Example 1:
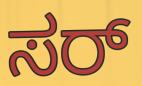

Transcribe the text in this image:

ಸರ್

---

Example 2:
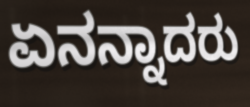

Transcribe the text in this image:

ಏನನ್ನಾದರು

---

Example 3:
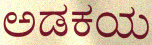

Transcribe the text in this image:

ಅಡಕಯ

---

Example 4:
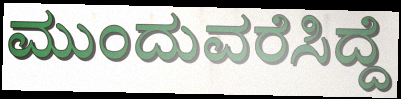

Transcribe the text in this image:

ಮುಂದುವರೆಸಿದ್ದೆ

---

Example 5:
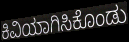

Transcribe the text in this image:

ಕಿವಿಯಾಗಿಸಿಕೊಂಡು